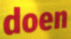
doen